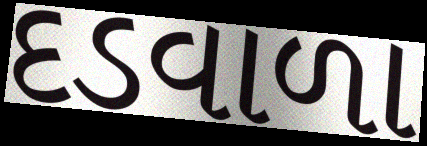
દડવાળા